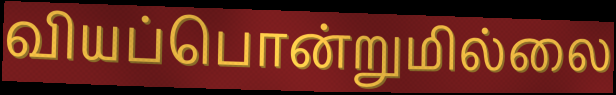
வியப்பொன்றுமில்லை